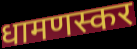
धामणस्कर